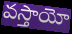
వస్తాయో